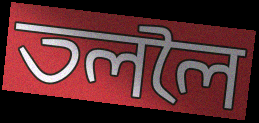
তললৈ